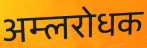
अम्लरोधक